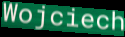
Wojciech